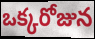
ఒక్కరోజున